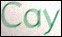
Cay